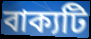
বাক্যটি